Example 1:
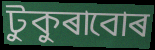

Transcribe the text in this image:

টুকুৰাবোৰ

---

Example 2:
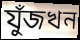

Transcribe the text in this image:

যুঁজখন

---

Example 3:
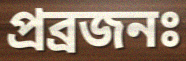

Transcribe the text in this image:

প্ৰব্ৰজনঃ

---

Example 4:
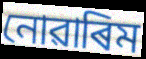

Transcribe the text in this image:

নোৱাৰিম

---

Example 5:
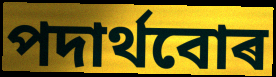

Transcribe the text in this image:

পদাৰ্থবোৰ